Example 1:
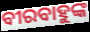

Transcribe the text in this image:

ବୀରବାହୁଙ୍କ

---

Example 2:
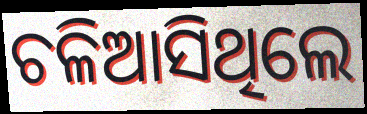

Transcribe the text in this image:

ଚଳିଆସିଥିଲେ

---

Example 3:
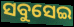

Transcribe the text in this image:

ସବୁସେଇ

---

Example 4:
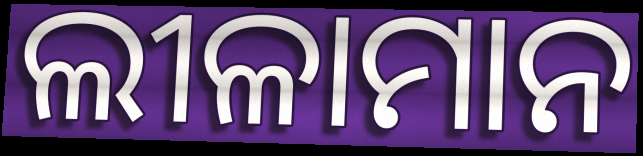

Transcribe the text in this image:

ଲୀଳାମାନ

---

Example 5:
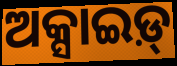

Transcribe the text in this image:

ଅକ୍ସାଇଡ଼୍